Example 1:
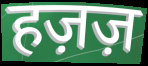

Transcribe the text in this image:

हज़ज़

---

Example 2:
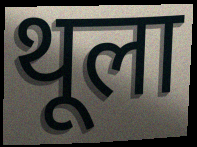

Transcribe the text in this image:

थूला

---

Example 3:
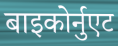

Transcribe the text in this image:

बाइकोर्नुएट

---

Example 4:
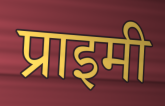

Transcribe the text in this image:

प्राइमी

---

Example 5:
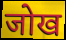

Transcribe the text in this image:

जोख